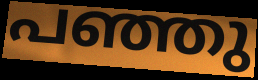
പഞ്ഞു